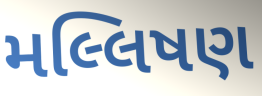
મલ્લિષણ